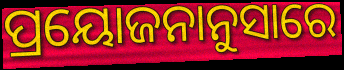
ପ୍ରୟୋଜନାନୁସାରେ